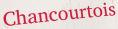
Chancourtois